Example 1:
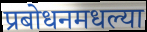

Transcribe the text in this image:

प्रबोधनमधल्या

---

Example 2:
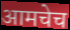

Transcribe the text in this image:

आमचेच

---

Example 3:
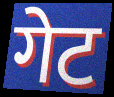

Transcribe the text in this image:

गेट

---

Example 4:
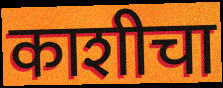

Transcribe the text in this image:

काशीचा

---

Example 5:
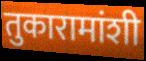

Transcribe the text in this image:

तुकारामांशी